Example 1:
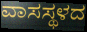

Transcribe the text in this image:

ವಾಸಸ್ಥಳದ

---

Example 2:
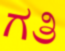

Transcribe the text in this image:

ಗತಿ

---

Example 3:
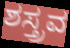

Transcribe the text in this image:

ಶಸ್ತ್ರವ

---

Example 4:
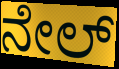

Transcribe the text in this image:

ನೇಲ್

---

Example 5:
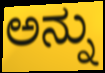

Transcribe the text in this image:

ಅನ್ನು